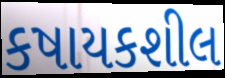
કષાયકશીલ